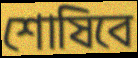
শোষিবে